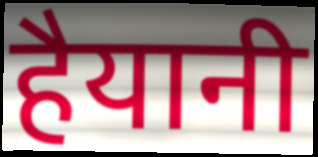
हैयानी